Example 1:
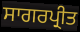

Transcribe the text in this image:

ਸਾਗਰਪ੍ਰੀਤ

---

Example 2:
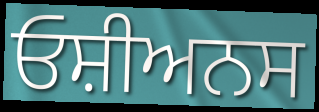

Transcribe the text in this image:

ਓਸ਼ੀਅਨਸ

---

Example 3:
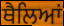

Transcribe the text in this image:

ਥੈਲਿਆਂ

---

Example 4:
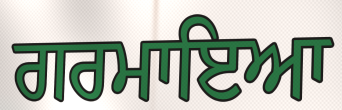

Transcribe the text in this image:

ਗਰਮਾਇਆ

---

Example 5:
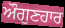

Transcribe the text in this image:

ਔਗੁਣਹਾਰ